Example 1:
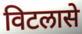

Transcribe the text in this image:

विटलासे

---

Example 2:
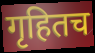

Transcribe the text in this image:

गृहितच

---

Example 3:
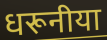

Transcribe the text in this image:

धरूनीया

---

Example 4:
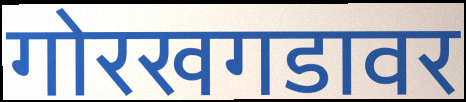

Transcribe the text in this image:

गोरखगडावर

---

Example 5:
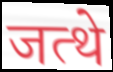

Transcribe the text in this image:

जत्थे